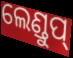
ଲେଣ୍ଡୁପ୍